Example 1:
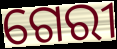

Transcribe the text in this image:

ଗେରୀ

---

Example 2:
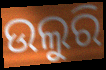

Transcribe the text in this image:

ଉଲୁରି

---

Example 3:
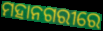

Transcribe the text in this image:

ମହାନଗରୀରେ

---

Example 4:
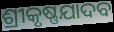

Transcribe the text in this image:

ଶ୍ରୀକୃଷ୍ଣଯାଦବ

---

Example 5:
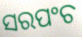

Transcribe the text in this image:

ସରପଂଚ